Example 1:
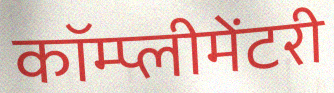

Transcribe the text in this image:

कॉम्प्लीमेंटरी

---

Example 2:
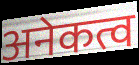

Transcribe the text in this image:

अनेकत्व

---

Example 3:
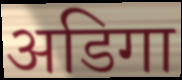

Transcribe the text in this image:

अडिगा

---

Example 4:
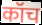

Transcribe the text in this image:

कॉच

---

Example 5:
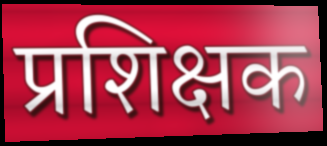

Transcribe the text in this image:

प्रशिक्षक